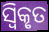
ସ୍ୱିକୃତ